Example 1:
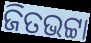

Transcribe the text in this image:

ଜିତଭଟ୍ଟା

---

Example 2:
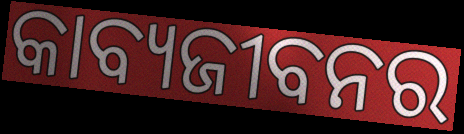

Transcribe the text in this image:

କାବ୍ୟଜୀବନର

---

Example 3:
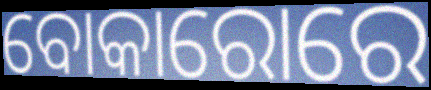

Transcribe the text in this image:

ବୋକାରୋରେ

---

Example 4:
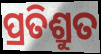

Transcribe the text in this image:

ପ୍ରତିଶ୍ରୁତ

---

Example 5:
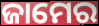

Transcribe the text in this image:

ଜାମେର